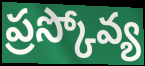
ప్రస్కోవ్య